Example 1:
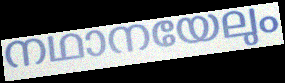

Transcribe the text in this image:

നഥാനയേലും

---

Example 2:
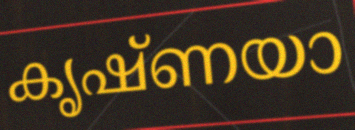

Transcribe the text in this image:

കൃഷ്ണയാ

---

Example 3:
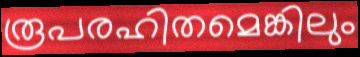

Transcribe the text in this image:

രൂപരഹിതമെങ്കിലും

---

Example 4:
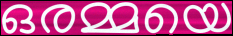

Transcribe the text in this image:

ഒരമ്മയെ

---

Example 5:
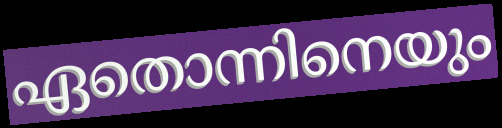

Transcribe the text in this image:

ഏതൊന്നിനെയും